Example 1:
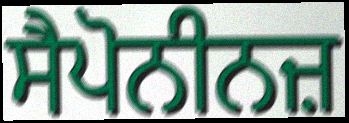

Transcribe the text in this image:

ਸੈਪੋਨੀਨਜ਼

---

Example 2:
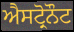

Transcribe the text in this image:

ਐਸਟ੍ਰੋਨੌਟ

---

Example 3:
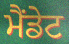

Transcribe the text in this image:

ਮੈਂਡੇਟ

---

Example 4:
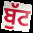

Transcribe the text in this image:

ਬੁੱਟ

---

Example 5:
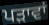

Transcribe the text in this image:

ਪੜਾਵਾਂ